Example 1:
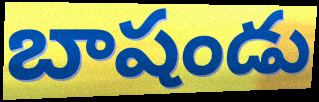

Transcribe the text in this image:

బాషండు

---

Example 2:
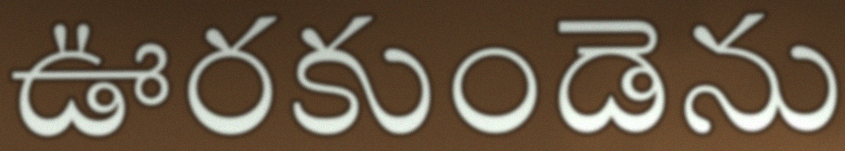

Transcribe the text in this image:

ఊరకుండెను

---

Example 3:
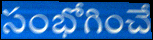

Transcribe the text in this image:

సంభోగించే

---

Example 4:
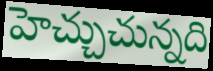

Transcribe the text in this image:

హెచ్చుచున్నది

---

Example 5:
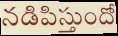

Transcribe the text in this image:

నడిపిస్తుందో